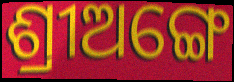
ଶ୍ରୀଅଙ୍ଗେ